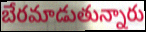
బేరమాడుతున్నారు